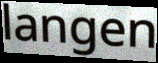
langen